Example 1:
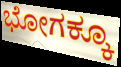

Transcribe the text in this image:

ಭೋಗಕ್ಕೂ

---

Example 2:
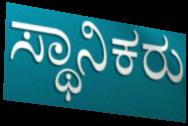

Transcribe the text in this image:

ಸ್ಥಾನಿಕರು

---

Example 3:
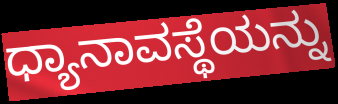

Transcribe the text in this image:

ಧ್ಯಾನಾವಸ್ಥೆಯನ್ನು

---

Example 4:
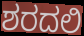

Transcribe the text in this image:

ಶರದಲಿ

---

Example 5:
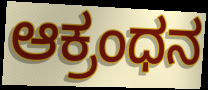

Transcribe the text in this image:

ಆಕ್ರಂಧನ